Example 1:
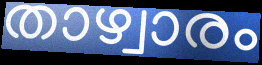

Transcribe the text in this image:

താഴ്വാരം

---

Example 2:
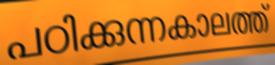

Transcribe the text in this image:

പഠിക്കുന്നകാലത്ത്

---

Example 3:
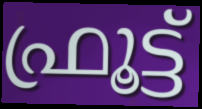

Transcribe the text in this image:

ഫ്രൂട്ട്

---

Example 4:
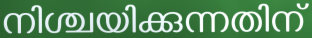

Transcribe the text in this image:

നിശ്ചയിക്കുന്നതിന്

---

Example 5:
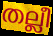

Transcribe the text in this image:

തല്ലീ